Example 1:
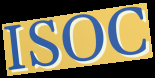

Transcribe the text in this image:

ISOC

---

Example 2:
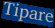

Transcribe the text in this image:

Tipare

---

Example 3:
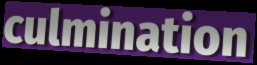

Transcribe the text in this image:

culmination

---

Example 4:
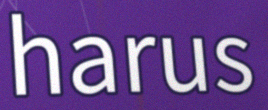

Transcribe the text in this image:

harus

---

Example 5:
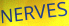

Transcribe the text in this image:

NERVES